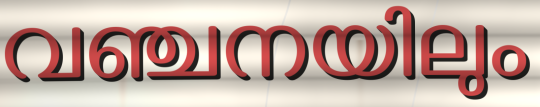
വഞ്ചനയിലും